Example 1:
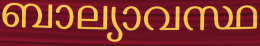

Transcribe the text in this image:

ബാല്യാവസ്ഥ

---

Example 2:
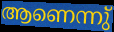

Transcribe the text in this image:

ആണെന്നു്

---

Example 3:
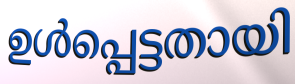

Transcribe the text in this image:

ഉൾപ്പെട്ടതായി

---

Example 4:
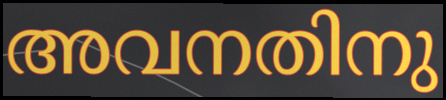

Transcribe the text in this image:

അവനതിനു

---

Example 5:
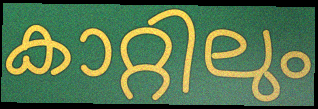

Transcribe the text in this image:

കാറ്റിലും